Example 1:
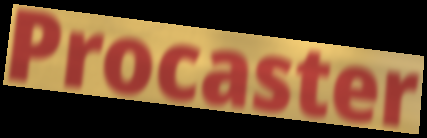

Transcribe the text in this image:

Procaster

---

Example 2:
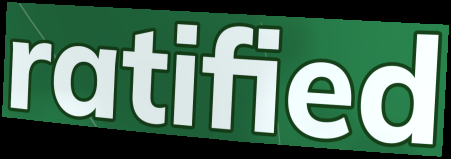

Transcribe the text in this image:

ratified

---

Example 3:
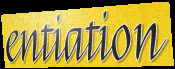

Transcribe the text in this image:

entiation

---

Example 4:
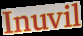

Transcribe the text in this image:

Inuvil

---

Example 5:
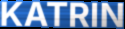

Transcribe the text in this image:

KATRIN